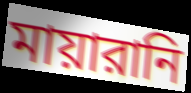
মায়ারানি